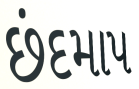
છંદમાપ